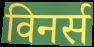
विनर्स